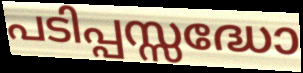
പടിപ്പസ്സദ്ധോ